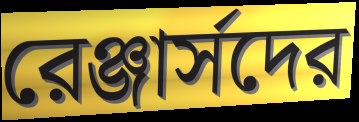
রেঞ্জার্সদের